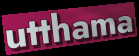
utthama